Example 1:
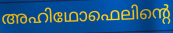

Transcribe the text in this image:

അഹിഥോഫെലിന്റെ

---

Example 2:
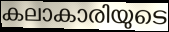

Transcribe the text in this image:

കലാകാരിയുടെ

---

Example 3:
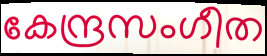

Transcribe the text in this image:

കേന്ദ്രസംഗീത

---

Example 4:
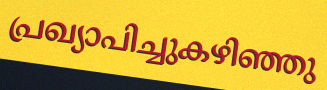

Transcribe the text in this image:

പ്രഖ്യാപിച്ചുകഴിഞ്ഞു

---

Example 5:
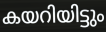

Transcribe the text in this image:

കയറിയിട്ടും